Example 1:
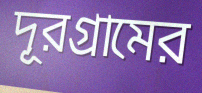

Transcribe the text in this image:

দূরগ্রামের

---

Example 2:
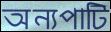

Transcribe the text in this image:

অন্যপাটি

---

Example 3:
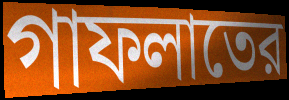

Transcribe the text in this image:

গাফলাতের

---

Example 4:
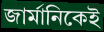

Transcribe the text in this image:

জার্মানিকেই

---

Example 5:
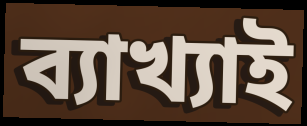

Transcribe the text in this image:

ব্যাখ্যাই